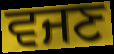
ਵਜਣ